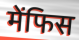
मेंफिस